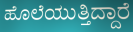
ಹೊಲೆಯುತ್ತಿದ್ದಾರೆ